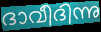
ദാവീദിന്നു